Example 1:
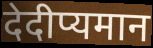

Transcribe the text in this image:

देदीप्यमान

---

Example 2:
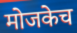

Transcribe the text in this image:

मोजकेच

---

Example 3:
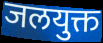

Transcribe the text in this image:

जलयुक्त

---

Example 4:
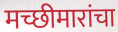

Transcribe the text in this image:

मच्छीमारांचा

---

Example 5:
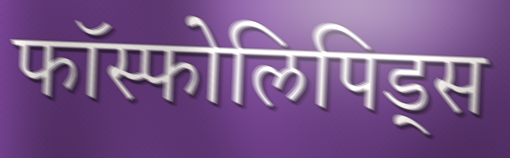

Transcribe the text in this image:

फॉस्फोलिपिड्स